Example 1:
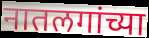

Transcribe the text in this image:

नातलगांच्या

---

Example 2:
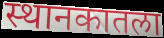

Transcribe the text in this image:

स्थानकातला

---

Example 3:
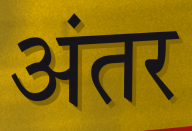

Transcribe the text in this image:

अंतर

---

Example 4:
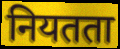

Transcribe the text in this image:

नियतता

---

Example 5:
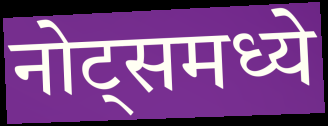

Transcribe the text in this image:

नोट्समध्ये